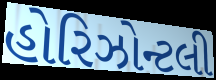
હોરિઝોન્ટલી